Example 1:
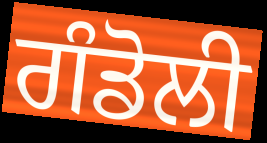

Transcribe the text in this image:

ਗੰਡੋਲੀ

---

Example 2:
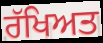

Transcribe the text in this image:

ਰੱਖਿਅਤ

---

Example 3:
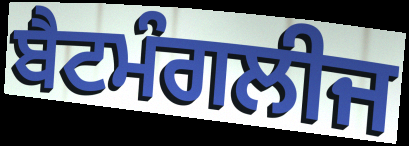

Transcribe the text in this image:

ਬੈਟਮੰਗਲੀਜ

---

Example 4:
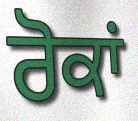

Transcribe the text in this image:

ਰੋਕਾਂ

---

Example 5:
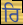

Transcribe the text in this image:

ਰਿ